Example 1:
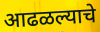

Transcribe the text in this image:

आढळल्याचे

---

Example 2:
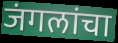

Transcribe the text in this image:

जंगलांचा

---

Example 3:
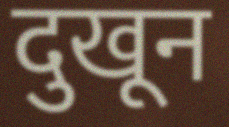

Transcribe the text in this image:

दुखून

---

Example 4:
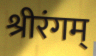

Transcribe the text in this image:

श्रीरंगम्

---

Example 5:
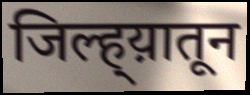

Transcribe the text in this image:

जिल्ह्य़ातून